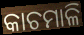
କାଚମାଳି